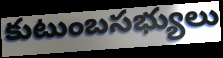
కుటుంబసభ్యులు